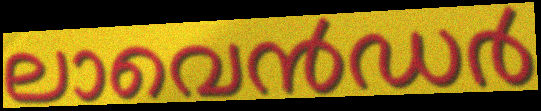
ലാവെൻഡർ